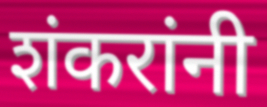
शंकरांनी